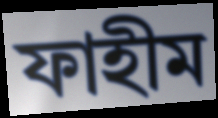
ফাহীম